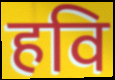
हवि